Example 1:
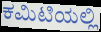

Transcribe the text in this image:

ಕಮಿಟಿಯಲ್ಲಿ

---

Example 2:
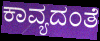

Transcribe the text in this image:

ಕಾವ್ಯದಂತೆ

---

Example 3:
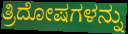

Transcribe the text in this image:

ತ್ರಿದೋಷಗಳನ್ನು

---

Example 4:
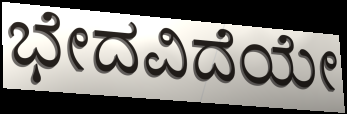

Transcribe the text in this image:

ಭೇದವಿದೆಯೇ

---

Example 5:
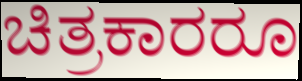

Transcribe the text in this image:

ಚಿತ್ರಕಾರರೂ